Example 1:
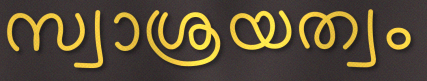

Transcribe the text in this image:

സ്വാശ്രയത്വം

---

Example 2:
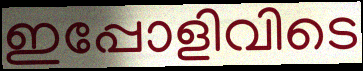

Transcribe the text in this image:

ഇപ്പോളിവിടെ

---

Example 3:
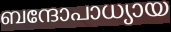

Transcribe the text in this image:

ബന്ദോപാധ്യായ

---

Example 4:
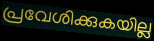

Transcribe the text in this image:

പ്രവേശിക്കുകയില്ല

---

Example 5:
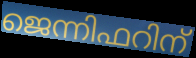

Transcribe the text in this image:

ജെന്നിഫറിന്